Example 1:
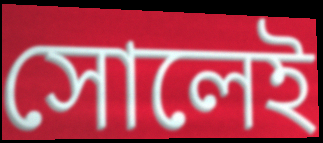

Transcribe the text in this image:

সোলেই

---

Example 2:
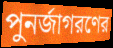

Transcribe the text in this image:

পুনর্জাগরণের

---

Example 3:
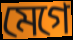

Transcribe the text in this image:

মেগে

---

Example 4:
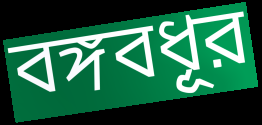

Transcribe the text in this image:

বঙ্গবধূর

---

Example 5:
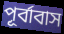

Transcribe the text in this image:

পূর্বাবাস